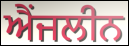
ਐਂਜਲੀਨ